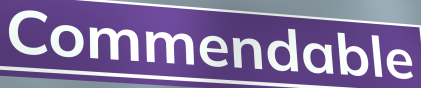
Commendable